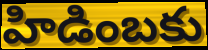
హిడింబకు